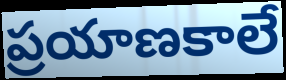
ప్రయాణకాలే